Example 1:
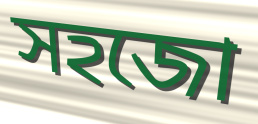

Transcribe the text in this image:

সহজো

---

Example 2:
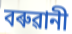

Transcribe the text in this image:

বৰুৱানী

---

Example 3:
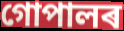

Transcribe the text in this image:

গোপালৰ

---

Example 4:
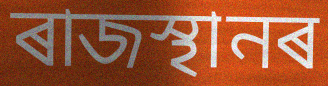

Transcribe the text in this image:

ৰাজস্থানৰ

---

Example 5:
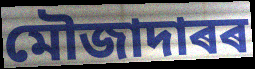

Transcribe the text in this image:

মৌজাদাৰৰ